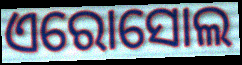
ଏରୋସୋଲ